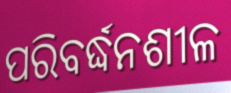
ପରିବର୍ଦ୍ଧନଶୀଳ